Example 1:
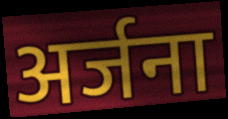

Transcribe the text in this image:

अर्जना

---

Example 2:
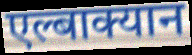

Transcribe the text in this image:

एल्बाक्यान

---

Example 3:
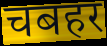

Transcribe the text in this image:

चबहर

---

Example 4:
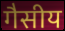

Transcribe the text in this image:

गैसीय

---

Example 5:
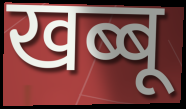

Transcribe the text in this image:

खब्बू